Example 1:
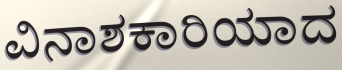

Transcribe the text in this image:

ವಿನಾಶಕಾರಿಯಾದ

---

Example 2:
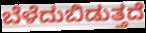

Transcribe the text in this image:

ಬೆಳೆದುಬಿಡುತ್ತದೆ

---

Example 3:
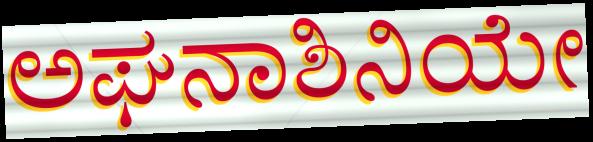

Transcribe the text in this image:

ಅಘನಾಶಿನಿಯೇ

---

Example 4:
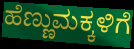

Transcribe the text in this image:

ಹೆಣ್ಣುಮಕ್ಕಳಿಗೆ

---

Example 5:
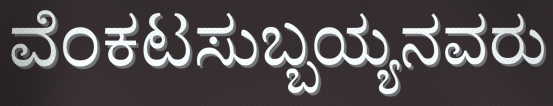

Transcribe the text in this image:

ವೆಂಕಟಸುಬ್ಬಯ್ಯನವರು